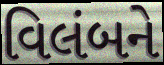
વિલંબને